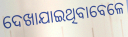
ଦେଖାଯାଇଥିବାବେଳେ